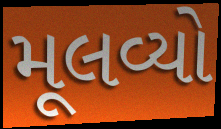
મૂલવ્યો